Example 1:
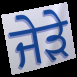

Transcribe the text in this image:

ਜੇੜੇ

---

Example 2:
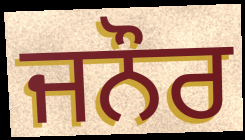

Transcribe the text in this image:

ਜਨੌਰ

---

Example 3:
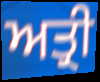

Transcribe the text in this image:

ਅਤ੍ਰੀ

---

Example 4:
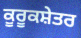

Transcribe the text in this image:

ਕੂਰੂਕਸ਼ੇਤਰ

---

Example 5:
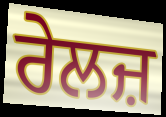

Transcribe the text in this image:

ਰੇਲਜ਼